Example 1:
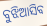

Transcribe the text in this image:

ବୁଝିଆସିବ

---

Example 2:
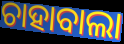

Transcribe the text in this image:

ଚାହାବାଲା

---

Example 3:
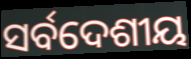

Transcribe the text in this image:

ସର୍ବଦେଶୀୟ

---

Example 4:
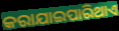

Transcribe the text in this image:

କରାଯାଇପାରିଥାଏ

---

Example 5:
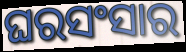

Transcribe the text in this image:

ଘରସଂସାର